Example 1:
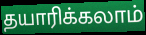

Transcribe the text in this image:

தயாரிக்கலாம்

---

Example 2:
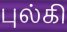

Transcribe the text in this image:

புல்கி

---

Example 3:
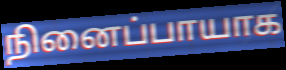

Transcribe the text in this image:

நினைப்பாயாக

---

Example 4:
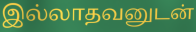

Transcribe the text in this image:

இல்லாதவனுடன்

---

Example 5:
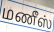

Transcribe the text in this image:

மணீஸ்